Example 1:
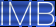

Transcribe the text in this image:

IMB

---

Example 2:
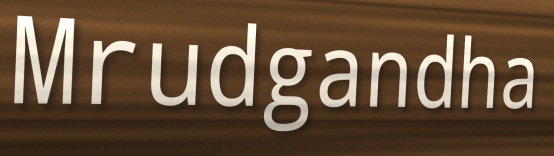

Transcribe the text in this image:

Mrudgandha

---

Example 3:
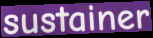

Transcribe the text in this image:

sustainer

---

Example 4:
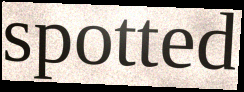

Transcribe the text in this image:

spotted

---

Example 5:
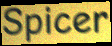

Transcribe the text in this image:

Spicer